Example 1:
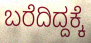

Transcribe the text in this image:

ಬರೆದಿದ್ದಕ್ಕೆ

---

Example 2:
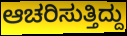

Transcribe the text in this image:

ಆಚರಿಸುತ್ತಿದ್ದು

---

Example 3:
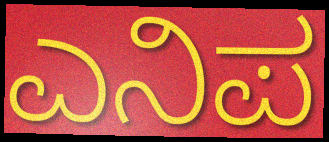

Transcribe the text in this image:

ಎನಿಪ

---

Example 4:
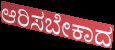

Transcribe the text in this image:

ಆರಿಸಬೇಕಾದ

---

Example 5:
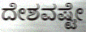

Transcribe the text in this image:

ದೇಶವಷ್ಟೇ